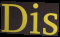
Dis